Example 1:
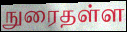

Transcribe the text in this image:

நுரைதள்ள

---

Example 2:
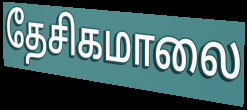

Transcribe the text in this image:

தேசிகமாலை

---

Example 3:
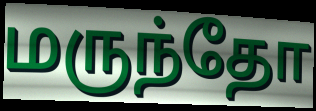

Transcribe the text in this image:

மருந்தோ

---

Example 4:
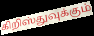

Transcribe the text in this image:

கிறிஸ்துவுக்கும்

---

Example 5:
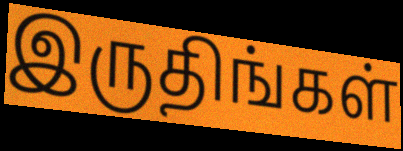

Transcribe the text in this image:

இருதிங்கள்